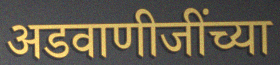
अडवाणीजींच्या